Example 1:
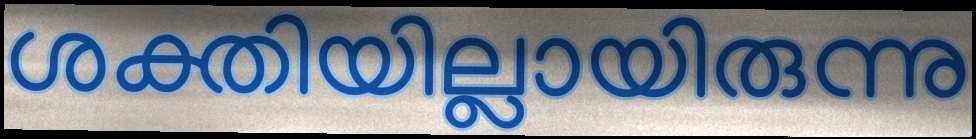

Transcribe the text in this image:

ശക്തിയില്ലായിരുന്നു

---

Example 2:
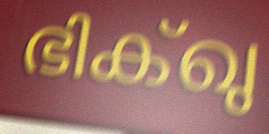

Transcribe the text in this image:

ഭിക്ഖു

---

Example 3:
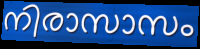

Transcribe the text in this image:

നിരാസാസം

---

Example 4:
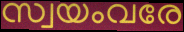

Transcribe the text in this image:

സ്വയംവരേ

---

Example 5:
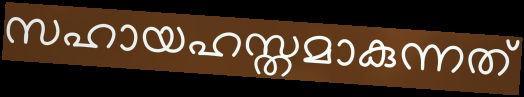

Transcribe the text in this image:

സഹായഹസ്തമാകുന്നത്